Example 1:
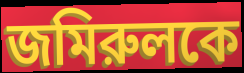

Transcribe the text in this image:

জমিরুলকে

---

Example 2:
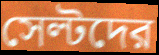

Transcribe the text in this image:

সেল্টদের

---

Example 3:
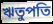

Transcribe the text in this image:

ঋতুপতি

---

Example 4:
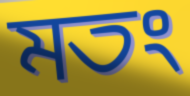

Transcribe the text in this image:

মতং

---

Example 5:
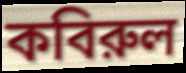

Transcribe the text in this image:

কবিরুল